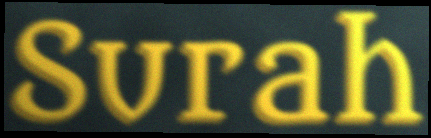
Surah